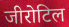
जीरोटिल